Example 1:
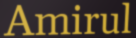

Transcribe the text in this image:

Amirul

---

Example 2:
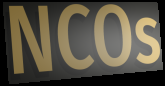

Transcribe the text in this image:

NCOs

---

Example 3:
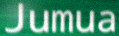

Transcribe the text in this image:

Jumua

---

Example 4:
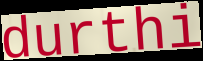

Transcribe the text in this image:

durthi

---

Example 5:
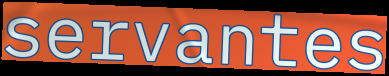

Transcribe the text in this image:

servantes